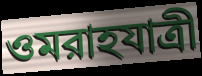
ওমরাহযাত্রী